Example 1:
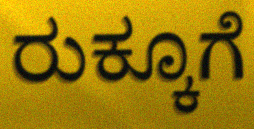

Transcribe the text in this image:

ರುಕ್ಕೂಗೆ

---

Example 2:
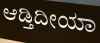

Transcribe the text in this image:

ಆಡ್ತಿದೀಯಾ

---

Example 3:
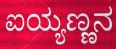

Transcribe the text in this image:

ಐಯ್ಯಣ್ಣನ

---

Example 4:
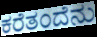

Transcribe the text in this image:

ಕರೆತಂದೆನು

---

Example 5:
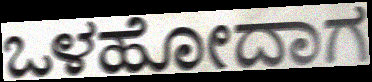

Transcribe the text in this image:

ಒಳಹೋದಾಗ